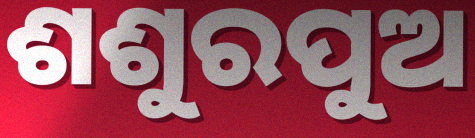
ଶଶୁରପୁଅ